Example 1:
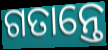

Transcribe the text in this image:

ଗତାନ୍ତେ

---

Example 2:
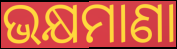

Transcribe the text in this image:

ଭକ୍ଷମାଣା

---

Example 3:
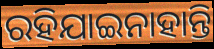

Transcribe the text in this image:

ରହିଯାଇନାହାନ୍ତି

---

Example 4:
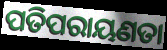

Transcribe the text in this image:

ପତିପରାୟଣତା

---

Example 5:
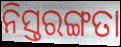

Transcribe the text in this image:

ନିସ୍ତରଙ୍ଗତା